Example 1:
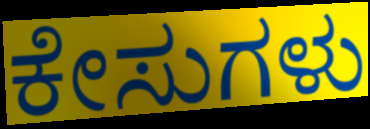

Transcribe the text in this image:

ಕೇಸುಗಳು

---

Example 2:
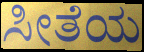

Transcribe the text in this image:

ಸೀತೆಯ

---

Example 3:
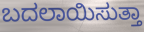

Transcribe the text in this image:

ಬದಲಾಯಿಸುತ್ತಾ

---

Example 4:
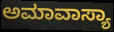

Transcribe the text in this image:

ಅಮಾವಾಸ್ಯಾ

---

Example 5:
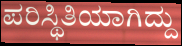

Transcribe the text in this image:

ಪರಿಸ್ಥಿತಿಯಾಗಿದ್ದು